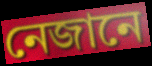
নেজানে